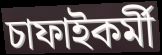
চাফাইকৰ্মী